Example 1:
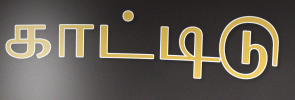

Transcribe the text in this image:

காட்டிடு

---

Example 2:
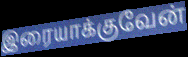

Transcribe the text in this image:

இரையாக்குவேன்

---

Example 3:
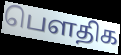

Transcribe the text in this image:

பௌதிக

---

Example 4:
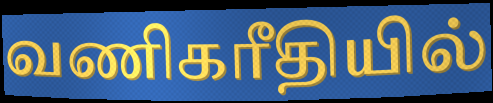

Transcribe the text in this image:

வணிகரீதியில்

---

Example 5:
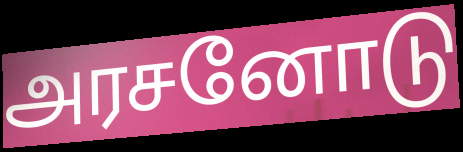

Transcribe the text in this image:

அரசனோடு